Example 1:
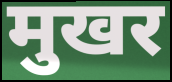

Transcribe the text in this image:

मुखर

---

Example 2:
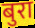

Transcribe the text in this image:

बुरा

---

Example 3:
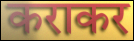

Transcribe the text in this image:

कराकर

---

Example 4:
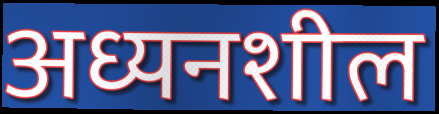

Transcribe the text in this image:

अध्यनशील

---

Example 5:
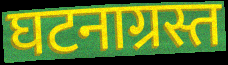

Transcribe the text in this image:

घटनाग्रस्त